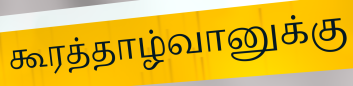
கூரத்தாழ்வானுக்கு